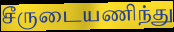
சீருடையணிந்து